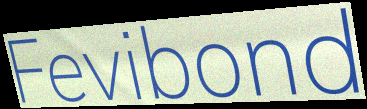
Fevibond